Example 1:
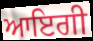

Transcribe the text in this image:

ਆਇਗੀ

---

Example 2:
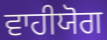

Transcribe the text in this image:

ਵਾਹੀਯੋਗ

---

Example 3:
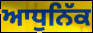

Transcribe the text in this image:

ਆਧੁਨਿੱਕ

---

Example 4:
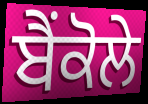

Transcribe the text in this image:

ਬੈਂਕੋਲੇ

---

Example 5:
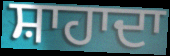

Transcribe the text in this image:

ਸ਼ਾਹਾਦਾ